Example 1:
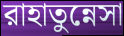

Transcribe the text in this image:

রাহাতুন্নেসা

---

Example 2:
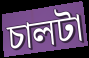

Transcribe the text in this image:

চালটা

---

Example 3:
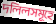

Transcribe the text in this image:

দলিলসমূহে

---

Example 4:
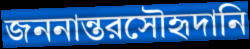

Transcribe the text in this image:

জননান্তরসৌহৃদানি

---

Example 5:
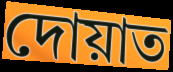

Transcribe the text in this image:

দোয়াত